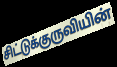
சிட்டுக்குருவியின்